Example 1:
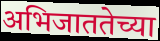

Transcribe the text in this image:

अभिजाततेच्या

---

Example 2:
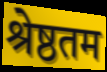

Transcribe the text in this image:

श्रेष्ठतम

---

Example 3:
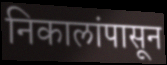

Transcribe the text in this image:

निकालांपासून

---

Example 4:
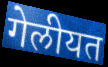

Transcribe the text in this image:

गेलीयत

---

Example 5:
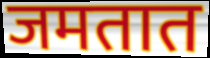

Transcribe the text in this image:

जमतात